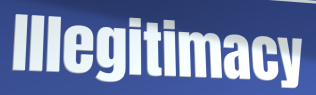
Illegitimacy